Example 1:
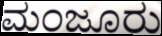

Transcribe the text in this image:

ಮಂಜೂರು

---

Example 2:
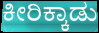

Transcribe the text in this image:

ಕೀರಿಕ್ಕಾಡು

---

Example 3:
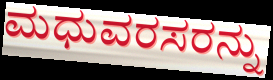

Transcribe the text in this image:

ಮಧುವರಸರನ್ನು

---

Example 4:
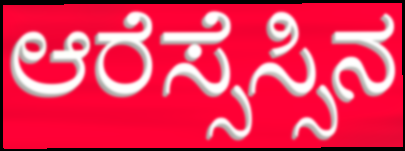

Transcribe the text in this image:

ಆರೆಸ್ಸೆಸ್ಸಿನ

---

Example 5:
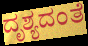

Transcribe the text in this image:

ದೃಶ್ಯದಂತೆ